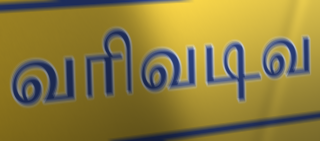
வரிவடிவ